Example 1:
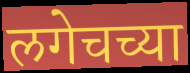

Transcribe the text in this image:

लगेचच्या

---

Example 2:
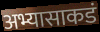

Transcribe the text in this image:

अभ्यासाकडं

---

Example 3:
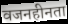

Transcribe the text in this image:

वजनहीनता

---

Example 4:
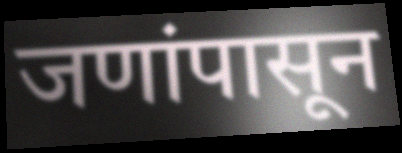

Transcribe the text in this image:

जणांपासून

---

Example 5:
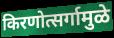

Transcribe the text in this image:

किरणोत्सर्गामुळे